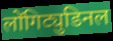
लोंगिट्युडिनल